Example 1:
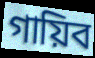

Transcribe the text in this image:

গায়িব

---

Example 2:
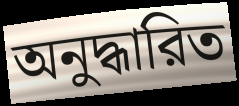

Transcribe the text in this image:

অনুদ্ধারিত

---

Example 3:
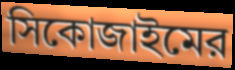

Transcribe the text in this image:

সিকোজাইমের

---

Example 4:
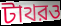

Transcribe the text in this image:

টাথরও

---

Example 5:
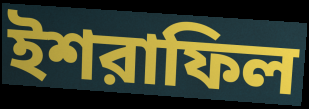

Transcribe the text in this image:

ইশরাফিল